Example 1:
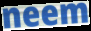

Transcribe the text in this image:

neem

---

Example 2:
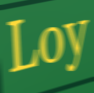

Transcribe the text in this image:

Loy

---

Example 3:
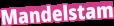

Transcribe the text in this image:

Mandelstam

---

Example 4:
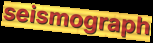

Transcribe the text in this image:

seismograph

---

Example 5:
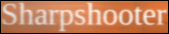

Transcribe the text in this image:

Sharpshooter